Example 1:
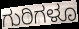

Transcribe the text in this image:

ಗುರಿಗಳೂ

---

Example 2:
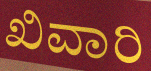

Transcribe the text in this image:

ಖಿವಾರಿ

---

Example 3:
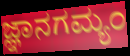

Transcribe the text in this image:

ಜ್ಞಾನಗಮ್ಯಂ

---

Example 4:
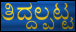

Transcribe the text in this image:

ತಿದ್ದಲ್ಪಟ್ಟ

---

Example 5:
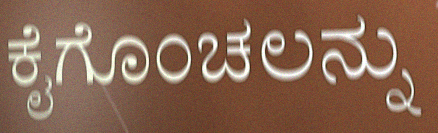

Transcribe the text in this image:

ಕೈಗೊಂಚಲನ್ನು